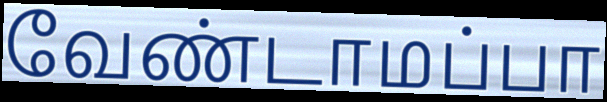
வேண்டாமப்பா